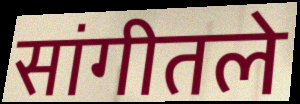
सांगीतले